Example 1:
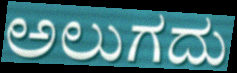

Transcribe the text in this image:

ಅಲುಗದು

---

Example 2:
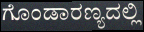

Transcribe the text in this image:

ಗೊಂಡಾರಣ್ಯದಲ್ಲಿ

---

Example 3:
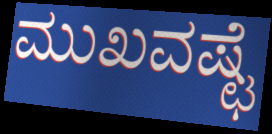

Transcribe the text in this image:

ಮುಖವಷ್ಟೆ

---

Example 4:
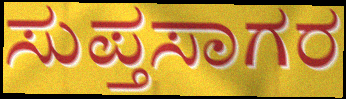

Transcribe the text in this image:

ಸುಪ್ತಸಾಗರ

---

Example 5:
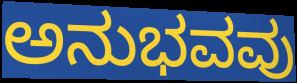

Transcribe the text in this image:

ಅನುಭವವು